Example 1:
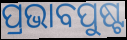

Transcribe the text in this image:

ପ୍ରଭାବପୁଷ୍ଟ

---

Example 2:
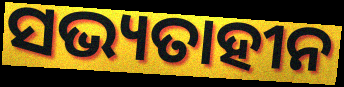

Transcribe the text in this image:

ସଭ୍ୟତାହୀନ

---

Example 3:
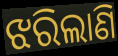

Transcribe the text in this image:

ଝରିଲାଣି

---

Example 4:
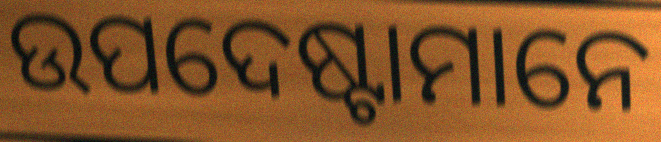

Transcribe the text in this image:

ଉପଦେଷ୍ଟାମାନେ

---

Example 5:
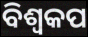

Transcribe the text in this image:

ବିଶ୍ବକପ